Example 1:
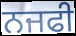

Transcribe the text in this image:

ਨਜਫੀ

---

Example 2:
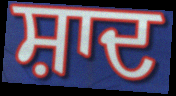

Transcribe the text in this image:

ਸ਼ਾਦ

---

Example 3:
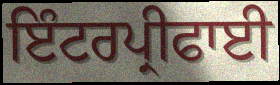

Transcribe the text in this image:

ਇੰਟਰਪ੍ਰੀਫਾਈ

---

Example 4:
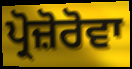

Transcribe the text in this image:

ਪ੍ਰੋਜ਼ੋਰੋਵਾ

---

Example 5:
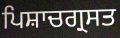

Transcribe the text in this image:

ਪਿਸ਼ਾਚਗ੍ਰਸਤ